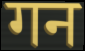
गन